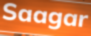
Saagar